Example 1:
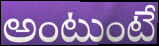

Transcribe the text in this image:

అంటుంటే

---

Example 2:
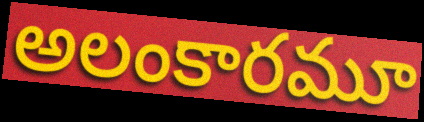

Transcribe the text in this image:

అలంకారమూ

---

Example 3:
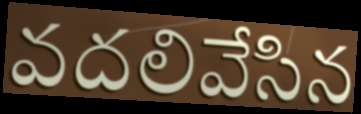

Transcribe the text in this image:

వదలివేసిన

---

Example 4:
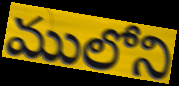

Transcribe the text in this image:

ములోని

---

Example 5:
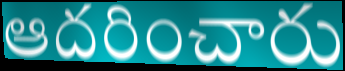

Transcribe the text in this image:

ఆదరించారు